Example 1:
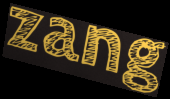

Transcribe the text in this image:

zang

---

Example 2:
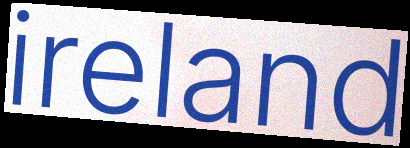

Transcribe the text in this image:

ireland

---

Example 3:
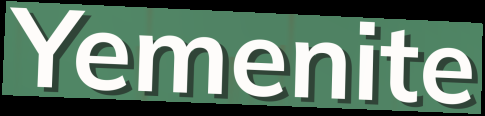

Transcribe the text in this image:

Yemenite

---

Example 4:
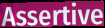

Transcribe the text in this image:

Assertive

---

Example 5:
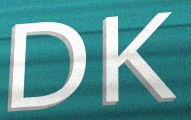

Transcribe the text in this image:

DK